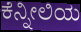
ಕೆನ್ನೀಲಿಯ